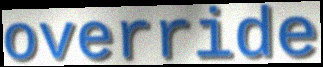
override